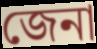
জেনা